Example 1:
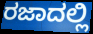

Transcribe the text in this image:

ರಜಾದಲ್ಲಿ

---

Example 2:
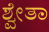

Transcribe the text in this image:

ಶ್ವೇತಾ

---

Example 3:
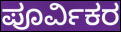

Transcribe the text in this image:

ಪೂರ್ವಿಕರ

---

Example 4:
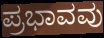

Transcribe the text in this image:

ಪ್ರಭಾವವು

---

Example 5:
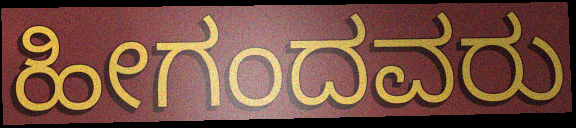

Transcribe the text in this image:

ಹೀಗಂದವರು